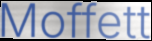
Moffett